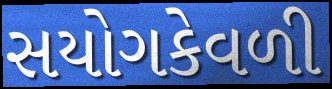
સયોગકેવળી